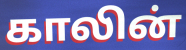
காலின்